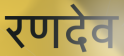
रणदेव